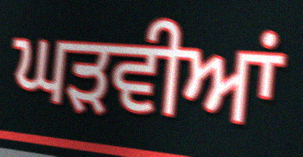
ਘੜਵੀਆਂ